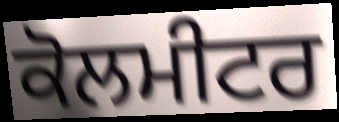
ਕੋਲਮੀਟਰ